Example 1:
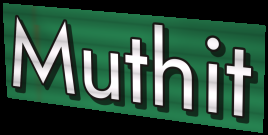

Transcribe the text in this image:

Muthit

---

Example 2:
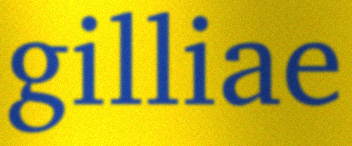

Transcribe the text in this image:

gilliae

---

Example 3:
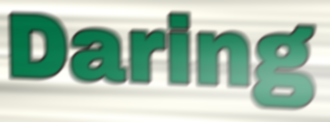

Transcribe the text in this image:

Daring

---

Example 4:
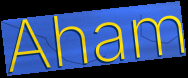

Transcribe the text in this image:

Aham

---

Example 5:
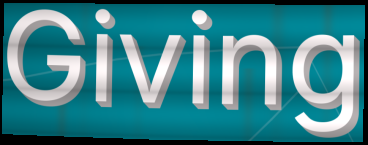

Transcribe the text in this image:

Giving